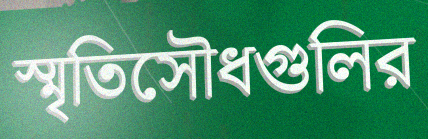
স্মৃতিসৌধগুলির